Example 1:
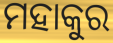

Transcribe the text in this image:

ମହାକୁର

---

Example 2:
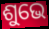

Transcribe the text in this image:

ଶୁଭେ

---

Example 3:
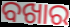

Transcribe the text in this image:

ବଖାର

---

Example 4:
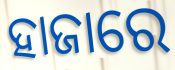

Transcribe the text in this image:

ହାଜାରେ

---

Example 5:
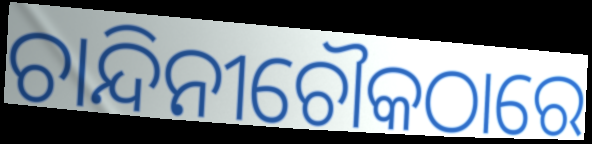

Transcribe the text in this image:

ଚାନ୍ଦିନୀଚୌକଠାରେ